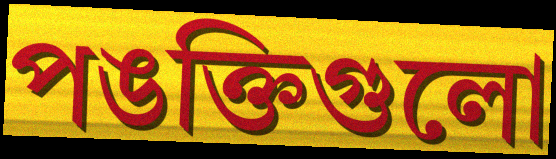
পঙক্তিগুলো